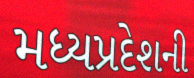
મધ્યપ્રદેશની